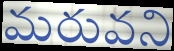
మరువని